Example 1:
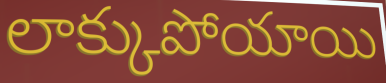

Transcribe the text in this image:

లాక్కుపోయాయి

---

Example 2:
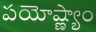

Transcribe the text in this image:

పయోష్ణ్యాం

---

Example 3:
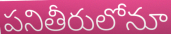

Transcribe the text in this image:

పనితీరులోనూ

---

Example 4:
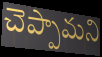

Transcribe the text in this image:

చెప్పామని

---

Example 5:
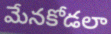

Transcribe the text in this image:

మేనకోడలా